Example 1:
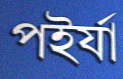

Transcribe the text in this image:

পইর্যা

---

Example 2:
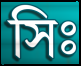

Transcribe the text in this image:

সিঃ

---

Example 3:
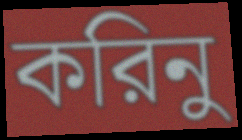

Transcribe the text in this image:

করিনু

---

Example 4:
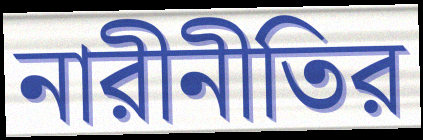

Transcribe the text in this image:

নারীনীতির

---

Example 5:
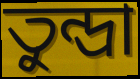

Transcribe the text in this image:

তুন্দ্রা